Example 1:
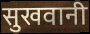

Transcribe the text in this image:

सुखवानी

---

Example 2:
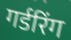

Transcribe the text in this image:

गर्डरिंग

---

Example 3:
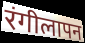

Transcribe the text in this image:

रंगीलापन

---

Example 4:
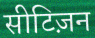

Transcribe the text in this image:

सीटिज़न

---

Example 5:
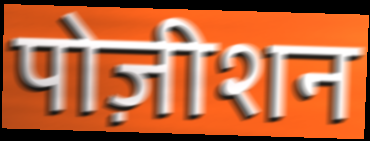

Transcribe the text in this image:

पोज़ीशन